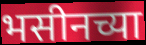
भसीनच्या